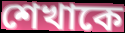
শেখাকে